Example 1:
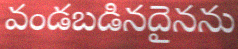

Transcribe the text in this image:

వండబడినదైనను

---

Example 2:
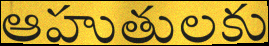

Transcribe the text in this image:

ఆహుతులకు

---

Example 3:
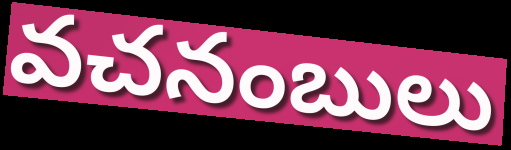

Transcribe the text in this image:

వచనంబులు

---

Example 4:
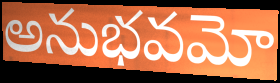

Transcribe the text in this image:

అనుభవమో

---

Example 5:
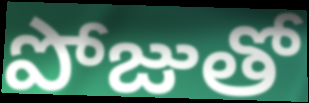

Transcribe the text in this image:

పోజుతో